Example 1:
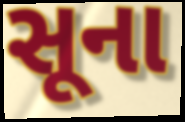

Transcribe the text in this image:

સૂના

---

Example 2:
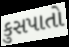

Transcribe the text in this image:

કુસપાતો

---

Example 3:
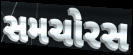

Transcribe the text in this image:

સમચોરસ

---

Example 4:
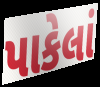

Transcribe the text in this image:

પાકેલાં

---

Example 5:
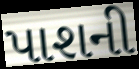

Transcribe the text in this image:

પાશની